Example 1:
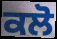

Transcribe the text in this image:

ਕਲੋ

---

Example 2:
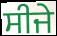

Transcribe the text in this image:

ਸੀਜੇ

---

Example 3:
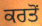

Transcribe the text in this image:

ਕਰਤੋਂ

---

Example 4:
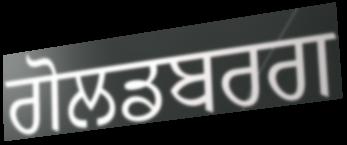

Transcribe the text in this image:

ਗੋਲਡਬਰਗ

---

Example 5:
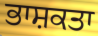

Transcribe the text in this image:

ਭਾਸ਼ਕਤਾ